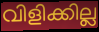
വിളിക്കില്ല